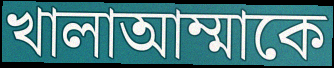
খালাআম্মাকে